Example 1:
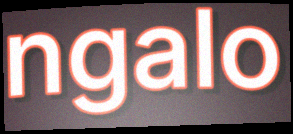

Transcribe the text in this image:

ngalo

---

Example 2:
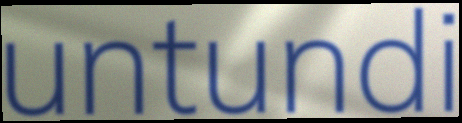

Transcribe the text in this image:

untundi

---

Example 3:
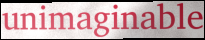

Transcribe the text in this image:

unimaginable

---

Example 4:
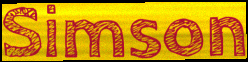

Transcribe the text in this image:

Simson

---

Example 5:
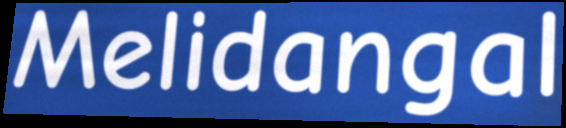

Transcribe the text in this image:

Melidangal